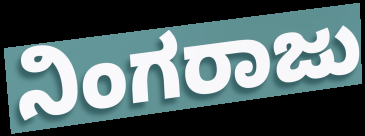
ನಿಂಗರಾಜು